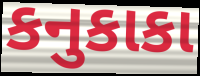
કનુકાકા